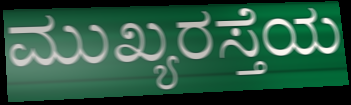
ಮುಖ್ಯರಸ್ತೆಯ